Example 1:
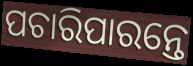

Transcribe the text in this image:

ପଚାରିପାରନ୍ତେ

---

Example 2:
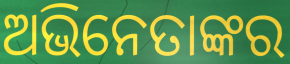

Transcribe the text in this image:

ଅଭିନେତାଙ୍କର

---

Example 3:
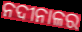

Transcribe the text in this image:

ନଦୀନାଳର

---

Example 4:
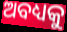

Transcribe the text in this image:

ଅବଧ୍ୟକୁ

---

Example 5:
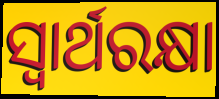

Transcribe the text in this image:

ସ୍ଵାର୍ଥରକ୍ଷା